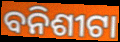
ବନିଶୀଟା